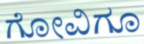
ಗೋವಿಗೂ